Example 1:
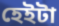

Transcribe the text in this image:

হেইটা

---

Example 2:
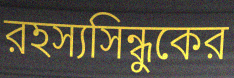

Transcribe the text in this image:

রহস্যসিন্ধুকের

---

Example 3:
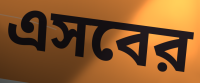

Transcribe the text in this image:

এসবের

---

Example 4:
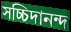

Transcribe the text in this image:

সচ্চিদানন্দ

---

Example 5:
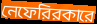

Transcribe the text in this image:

নেফেরিরকারে